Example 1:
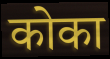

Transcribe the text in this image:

कोका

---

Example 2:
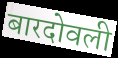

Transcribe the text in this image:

बारदोवली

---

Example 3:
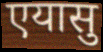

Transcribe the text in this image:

एयासु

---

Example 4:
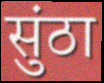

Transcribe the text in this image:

सुंठा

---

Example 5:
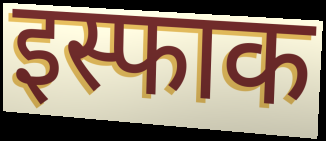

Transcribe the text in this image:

इस्फाक